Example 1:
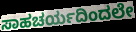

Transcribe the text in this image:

ಸಾಹಚರ್ಯದಿಂದಲೇ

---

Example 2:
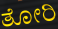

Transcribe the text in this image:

ತೋರಿ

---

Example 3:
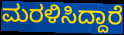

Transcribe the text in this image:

ಮರಳಿಸಿದ್ದಾರೆ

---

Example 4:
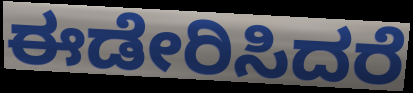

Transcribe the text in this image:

ಈಡೇರಿಸಿದರೆ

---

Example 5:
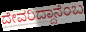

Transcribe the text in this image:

ದೇವರಿದ್ದಾನೆಂಬ